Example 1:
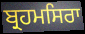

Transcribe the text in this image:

ਬ੍ਰਹਮਸਿਰਾ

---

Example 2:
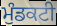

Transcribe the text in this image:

ਮੁੰਡਕਟੀ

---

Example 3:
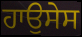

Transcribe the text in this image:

ਹਾਉਸੇਸ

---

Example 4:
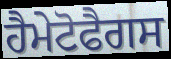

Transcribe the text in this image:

ਹੈਮੇਟੋਫੈਗਸ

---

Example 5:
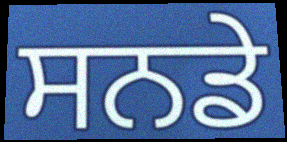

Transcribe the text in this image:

ਸਨਡੇ